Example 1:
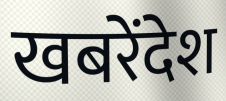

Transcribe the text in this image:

खबरेंदेश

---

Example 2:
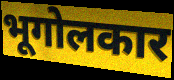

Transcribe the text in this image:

भूगोलकार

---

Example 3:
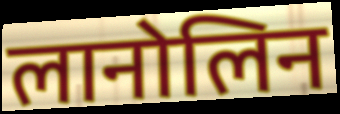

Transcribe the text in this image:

लानोलिन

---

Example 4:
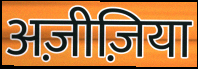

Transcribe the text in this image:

अज़ीज़िया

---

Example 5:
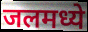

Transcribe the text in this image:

जलमध्ये